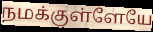
நமக்குள்ளேயே